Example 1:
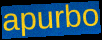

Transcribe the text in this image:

apurbo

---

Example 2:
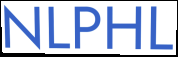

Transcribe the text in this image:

NLPHL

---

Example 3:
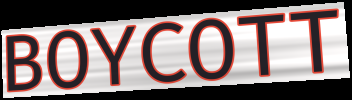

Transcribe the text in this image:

BOYCOTT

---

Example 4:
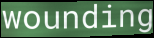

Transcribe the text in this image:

wounding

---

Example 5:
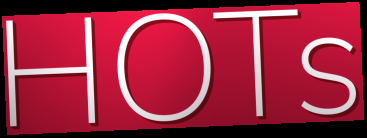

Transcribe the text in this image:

HOTs